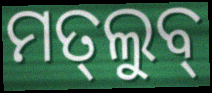
ମତ୍‌ଲୁବ୍